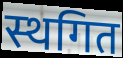
स्थगित